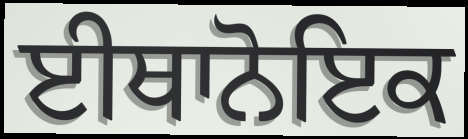
ਈਥਾਨੋਇਕ